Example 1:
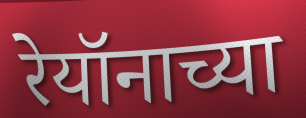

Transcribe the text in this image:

रेयॉनाच्या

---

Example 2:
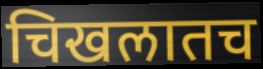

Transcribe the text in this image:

चिखलातच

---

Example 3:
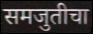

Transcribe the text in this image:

समजुतीचा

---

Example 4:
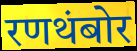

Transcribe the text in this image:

रणथंबोर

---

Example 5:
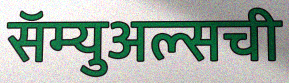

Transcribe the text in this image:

सॅम्युअल्सची